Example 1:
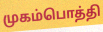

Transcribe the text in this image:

முகம்பொத்தி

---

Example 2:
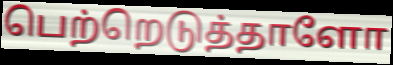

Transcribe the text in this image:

பெற்றெடுத்தாளோ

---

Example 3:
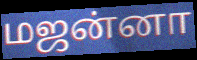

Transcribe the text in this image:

மஜன்னா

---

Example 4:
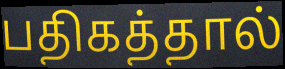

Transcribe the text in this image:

பதிகத்தால்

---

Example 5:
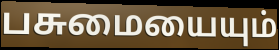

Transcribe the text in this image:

பசுமையையும்